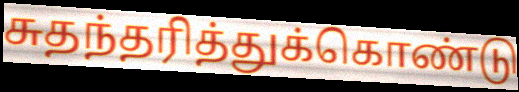
சுதந்தரித்துக்கொண்டு